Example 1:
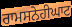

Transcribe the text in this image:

ਰਾਮਸਨੇਹੀਘਾਟ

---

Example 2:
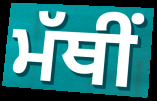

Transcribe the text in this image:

ਮੱਥੀਂ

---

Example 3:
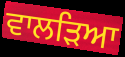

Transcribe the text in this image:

ਵਾਲੜਿਆ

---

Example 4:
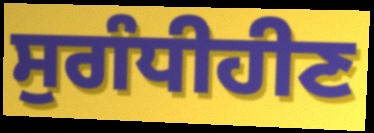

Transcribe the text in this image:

ਸੁਗੰਧੀਹੀਣ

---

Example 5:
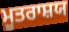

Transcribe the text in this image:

ਮੂਤਰਾਸ਼ਯ